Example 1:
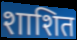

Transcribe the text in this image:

शाशित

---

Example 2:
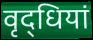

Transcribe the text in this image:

वृद्धियां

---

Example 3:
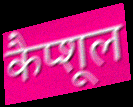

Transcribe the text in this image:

कैप्शूल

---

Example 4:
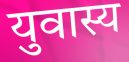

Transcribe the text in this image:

युवास्य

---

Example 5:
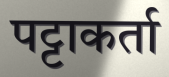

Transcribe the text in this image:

पट्टाकर्ता